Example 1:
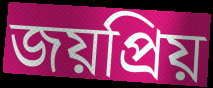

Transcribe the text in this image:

জয়প্রিয়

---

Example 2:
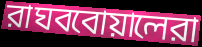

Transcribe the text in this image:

রাঘববোয়ালেরা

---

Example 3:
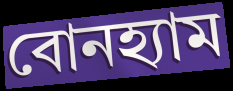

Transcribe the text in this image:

বোনহ্যাম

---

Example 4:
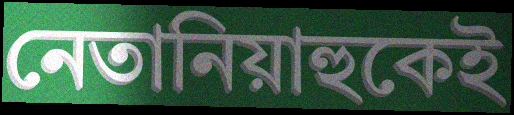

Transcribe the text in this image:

নেতানিয়াহুকেই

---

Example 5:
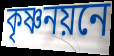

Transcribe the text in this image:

কৃষ্ণনয়নে